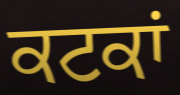
ਕਟਕਾਂ